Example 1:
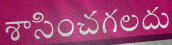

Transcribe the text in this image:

శాసించగలదు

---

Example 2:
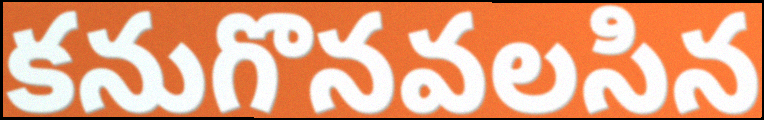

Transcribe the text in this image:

కనుగొనవలసిన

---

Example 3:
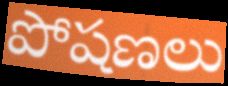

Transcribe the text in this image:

పోషణలు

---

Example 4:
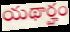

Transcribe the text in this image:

యథార్హం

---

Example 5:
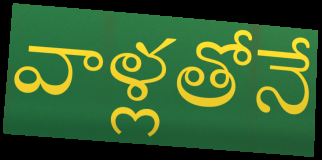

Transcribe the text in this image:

వాళ్లతోనే